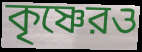
কৃষ্ণেরও